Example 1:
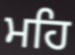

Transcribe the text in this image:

ਮਹਿ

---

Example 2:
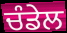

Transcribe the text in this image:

ਚੰਡੇਲ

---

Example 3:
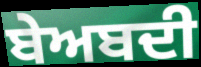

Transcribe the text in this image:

ਬੇਅਬਦੀ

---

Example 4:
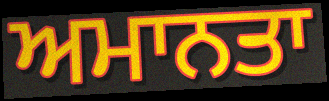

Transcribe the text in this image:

ਅਮਾਨਤਾ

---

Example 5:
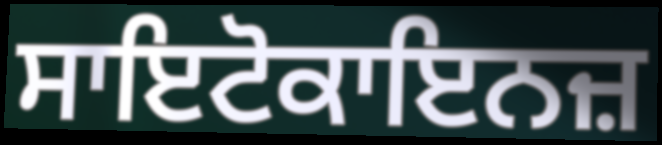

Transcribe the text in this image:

ਸਾਇਟੋਕਾਇਨਜ਼